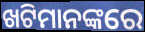
ଖଟିମାନଙ୍କରେ